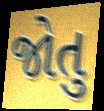
જોતુ